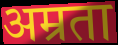
अम्रता